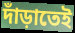
দাঁড়াতেই